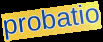
probatio